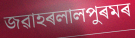
জৱাহৰলালপুৰমৰ